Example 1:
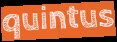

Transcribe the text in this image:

quintus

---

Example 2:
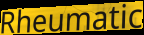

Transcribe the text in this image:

Rheumatic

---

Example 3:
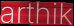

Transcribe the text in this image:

arthik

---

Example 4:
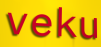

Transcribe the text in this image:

veku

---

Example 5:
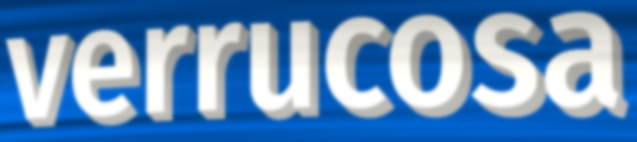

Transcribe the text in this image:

verrucosa